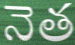
నెత